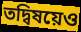
তদ্বিষয়েও